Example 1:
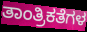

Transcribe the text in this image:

ತಾಂತ್ರಿಕತೆಗಳ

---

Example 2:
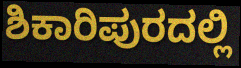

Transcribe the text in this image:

ಶಿಕಾರಿಪುರದಲ್ಲಿ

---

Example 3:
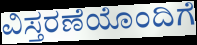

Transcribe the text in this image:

ವಿಸ್ತರಣೆಯೊಂದಿಗೆ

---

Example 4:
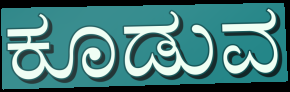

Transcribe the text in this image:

ಕೂಡುವ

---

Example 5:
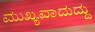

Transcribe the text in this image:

ಮುಖ್ಯವಾದುದ್ದು